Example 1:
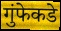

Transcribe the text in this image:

गुंफेकडे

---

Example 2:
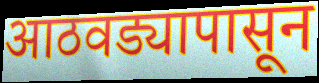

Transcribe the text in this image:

आठवड्यापासून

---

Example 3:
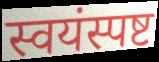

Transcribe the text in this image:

स्वयंस्पष्ट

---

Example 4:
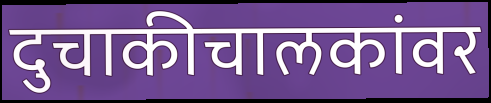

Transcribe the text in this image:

दुचाकीचालकांवर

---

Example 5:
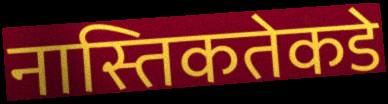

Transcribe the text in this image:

नास्तिकतेकडे